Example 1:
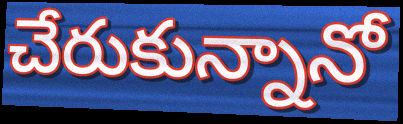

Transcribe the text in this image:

చేరుకున్నానో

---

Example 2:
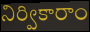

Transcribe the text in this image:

నిర్వికారాం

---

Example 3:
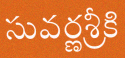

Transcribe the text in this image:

సువర్ణశ్రీకి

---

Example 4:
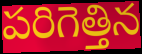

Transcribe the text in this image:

పరిగెత్తిన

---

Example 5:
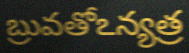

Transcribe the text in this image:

బ్రువతోఽన్యత్ర